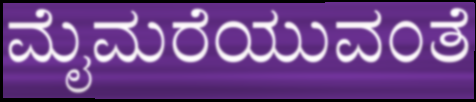
ಮೈಮರೆಯುವಂತೆ